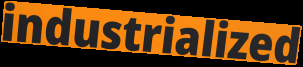
industrialized